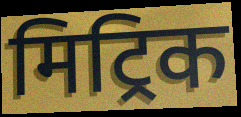
मिट्रिक